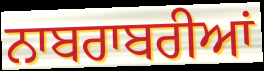
ਨਾਬਰਾਬਰੀਆਂ